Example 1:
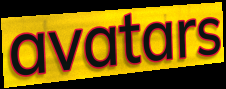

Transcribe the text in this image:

avatars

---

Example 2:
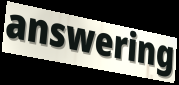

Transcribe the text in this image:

answering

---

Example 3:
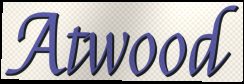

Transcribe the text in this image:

Atwood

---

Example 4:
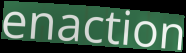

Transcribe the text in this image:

enaction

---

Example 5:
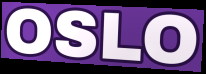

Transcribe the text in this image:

OSLO